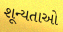
શૂન્યતાઓ